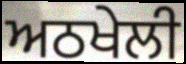
ਅਠਖੇਲੀ